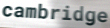
cambridge